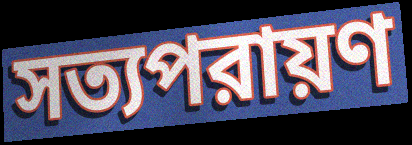
সত্যপরায়ণ